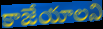
కాజేయాలని